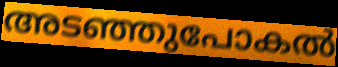
അടഞ്ഞുപോകൽ